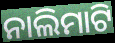
ନାଲିମାଟି